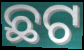
ଛଟ